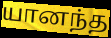
யானந்த